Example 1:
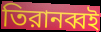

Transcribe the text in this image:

তিরানব্বই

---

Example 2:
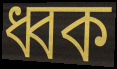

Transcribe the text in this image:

ধ্বক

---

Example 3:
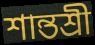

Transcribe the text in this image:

শান্তশ্রী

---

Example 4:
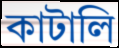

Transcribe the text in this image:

কাটালি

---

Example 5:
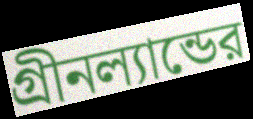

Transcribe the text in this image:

গ্রীনল্যান্ডের